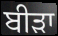
ਬੀੜਾ